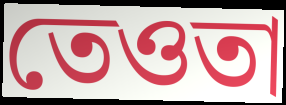
তেওতা